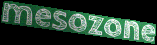
mesozone